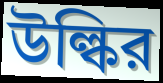
উল্কির